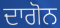
ਦਾਗੋਨ